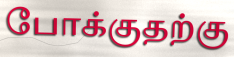
போக்குதற்கு